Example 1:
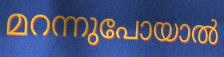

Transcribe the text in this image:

മറന്നുപോയാൽ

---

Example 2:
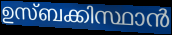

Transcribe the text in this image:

ഉസ്ബക്കിസ്ഥാൻ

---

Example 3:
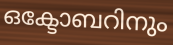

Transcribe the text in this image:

ഒക്ടോബറിനും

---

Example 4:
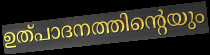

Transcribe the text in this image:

ഉത്പാദനത്തിന്റെയും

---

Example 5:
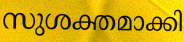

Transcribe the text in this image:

സുശക്തമാക്കി